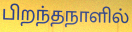
பிறந்தநாளில்